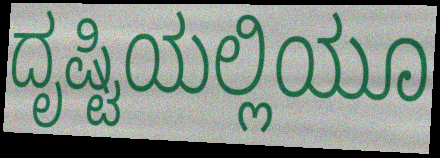
ದೃಷ್ಟಿಯಲ್ಲಿಯೂ